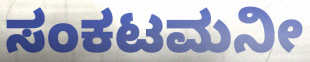
ಸಂಕಟಮನೀ